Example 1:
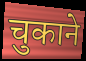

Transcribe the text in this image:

चुकाने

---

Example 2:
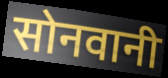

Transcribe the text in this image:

सोनवानी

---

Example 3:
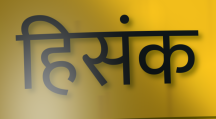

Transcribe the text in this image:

हिसंक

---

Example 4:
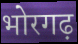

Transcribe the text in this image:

भोरगढ़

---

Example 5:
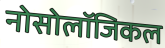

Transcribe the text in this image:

नोसोलॉजिकल